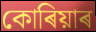
কোৰিয়াৰ